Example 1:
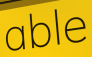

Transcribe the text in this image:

able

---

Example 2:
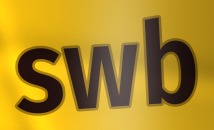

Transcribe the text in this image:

swb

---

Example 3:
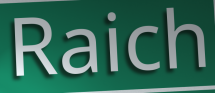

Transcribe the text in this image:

Raich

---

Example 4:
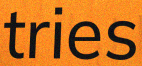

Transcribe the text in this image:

tries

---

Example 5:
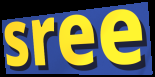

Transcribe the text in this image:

sree